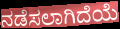
ನಡೆಸಲಾಗಿದೆಯೆ